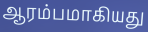
ஆரம்பமாகியது